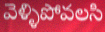
వెళ్ళిపోవలసి